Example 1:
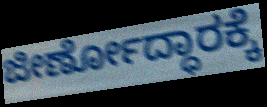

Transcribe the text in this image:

ಜೀರ್ಣೋದ್ಧಾರಕ್ಕೆ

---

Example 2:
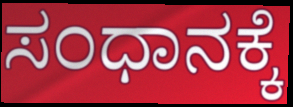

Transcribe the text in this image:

ಸಂಧಾನಕ್ಕೆ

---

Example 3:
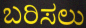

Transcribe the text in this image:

ಬರಿಸಲು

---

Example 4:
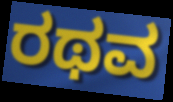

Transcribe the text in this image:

ರಥವ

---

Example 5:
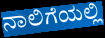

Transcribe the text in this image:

ನಾಲಿಗೆಯಲ್ಲಿ